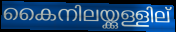
കൈനിലയ്ക്കുള്ളില്